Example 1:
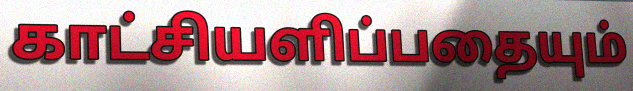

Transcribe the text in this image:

காட்சியளிப்பதையும்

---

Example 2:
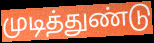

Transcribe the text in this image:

முடித்துண்டு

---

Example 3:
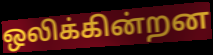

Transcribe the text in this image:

ஒலிக்கின்றன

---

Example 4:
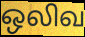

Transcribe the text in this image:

ஒலிவ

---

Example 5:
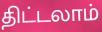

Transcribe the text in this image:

திட்டலாம்